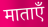
माताएँ